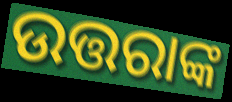
ଉତ୍ତରାଙ୍କ